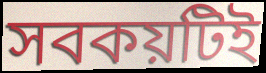
সবকয়টিই